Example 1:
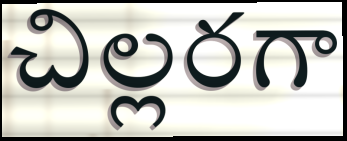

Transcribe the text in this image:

చిల్లరగా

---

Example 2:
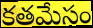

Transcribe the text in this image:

కతమేసం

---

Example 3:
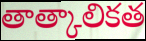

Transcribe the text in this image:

తాత్కాలికత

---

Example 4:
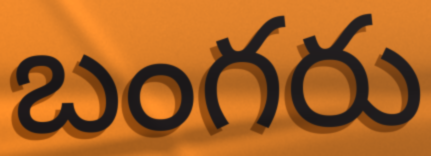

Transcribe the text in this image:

బంగరు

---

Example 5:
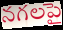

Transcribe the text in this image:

నగలపై